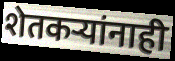
शेतकऱ्यांनाही